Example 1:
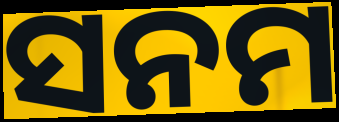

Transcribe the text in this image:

ସନମ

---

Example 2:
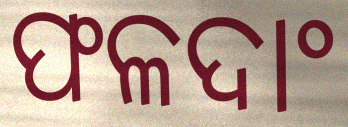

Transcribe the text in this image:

ଫଳଦାଂ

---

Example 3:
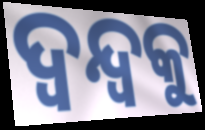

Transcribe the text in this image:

ଦ୍ଵନ୍ଦ୍ଵକୁ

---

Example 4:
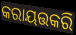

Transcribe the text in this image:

କରାୟତ୍ତକରି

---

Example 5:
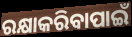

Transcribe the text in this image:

ରକ୍ଷାକରିବାପାଇଁ